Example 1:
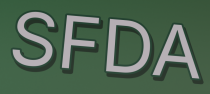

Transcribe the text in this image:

SFDA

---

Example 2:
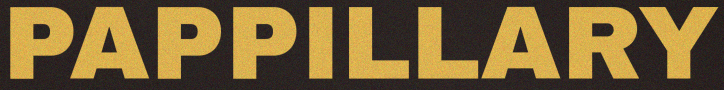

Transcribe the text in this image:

PAPPILLARY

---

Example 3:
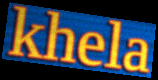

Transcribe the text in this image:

khela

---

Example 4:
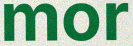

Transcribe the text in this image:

mor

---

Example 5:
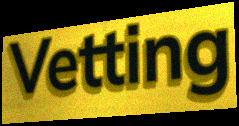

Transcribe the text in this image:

Vetting